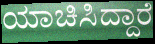
ಯಾಚಿಸಿದ್ದಾರೆ